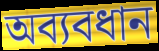
অব্যবধান